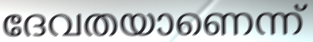
ദേവതയാണെന്ന്